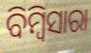
ବିମ୍ବିସାରା